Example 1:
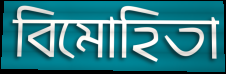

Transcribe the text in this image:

বিমোহিতা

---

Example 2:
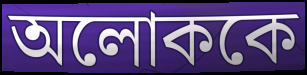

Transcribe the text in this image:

অলোককে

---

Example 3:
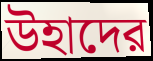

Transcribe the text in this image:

উহাদের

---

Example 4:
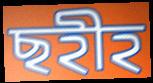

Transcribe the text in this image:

ছহীহ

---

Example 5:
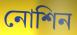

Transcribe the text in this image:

নোশিন